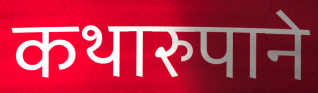
कथारुपाने